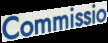
Commissio